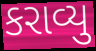
કરાવ્યુ